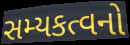
સમ્યકત્વનો